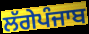
ਲੱਗੇਪੰਜਾਬ